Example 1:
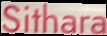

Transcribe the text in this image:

Sithara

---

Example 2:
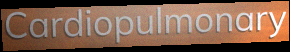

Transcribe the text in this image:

Cardiopulmonary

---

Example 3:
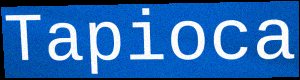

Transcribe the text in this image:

Tapioca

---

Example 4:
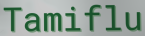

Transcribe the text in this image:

Tamiflu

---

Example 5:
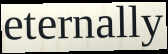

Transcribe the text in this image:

eternally